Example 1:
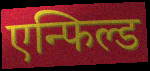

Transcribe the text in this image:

एन्फिल्ड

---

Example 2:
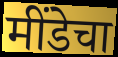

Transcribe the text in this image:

मींडेचा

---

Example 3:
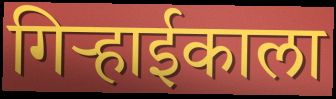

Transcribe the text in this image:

गिर्‍हाईकाला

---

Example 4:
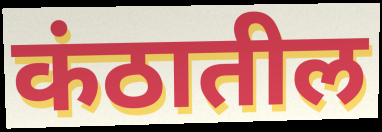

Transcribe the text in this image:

कंठातील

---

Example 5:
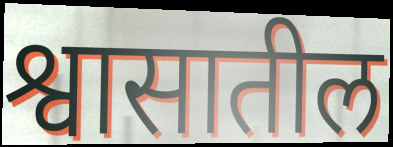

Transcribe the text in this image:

श्वासातील